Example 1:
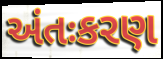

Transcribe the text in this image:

અંતઃકરણ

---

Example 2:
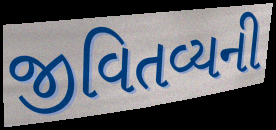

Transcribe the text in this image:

જીવિતવ્યની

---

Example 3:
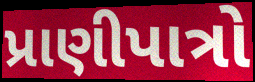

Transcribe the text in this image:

પ્રાણીપાત્રો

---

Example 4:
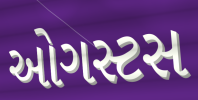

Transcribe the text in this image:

ઓગસ્ટસ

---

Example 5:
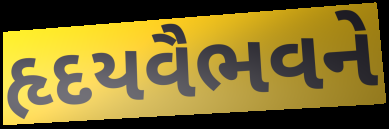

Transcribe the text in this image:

હૃદયવૈભવને